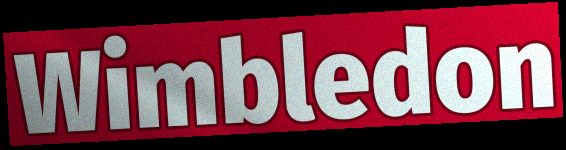
Wimbledon